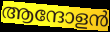
ആന്ദോളൻ